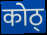
कोठ्